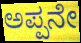
ಅಪ್ಪನೇ